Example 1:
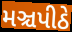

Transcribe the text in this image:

મઞ્ચપીઠે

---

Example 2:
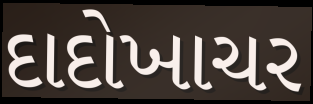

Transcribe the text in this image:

દાદોખાચર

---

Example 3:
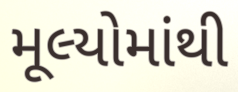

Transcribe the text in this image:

મૂલ્યોમાંથી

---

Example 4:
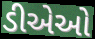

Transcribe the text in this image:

ડીએઓ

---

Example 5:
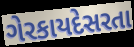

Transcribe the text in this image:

ગેરકાયદેસરતા